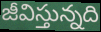
జీవిస్తున్నది